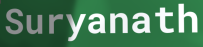
Suryanath